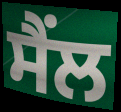
ਸੈਂਲ